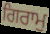
ਗਿਰਾਮੁ